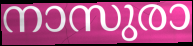
നാസുരാ